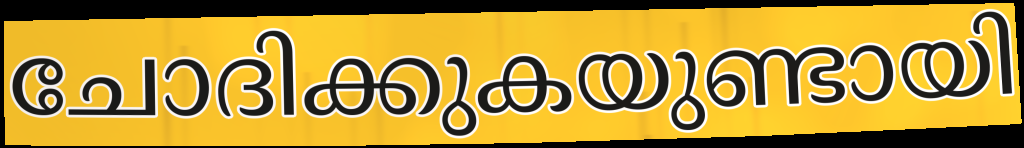
ചോദിക്കുകയുണ്ടായി